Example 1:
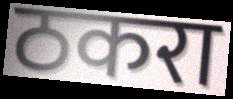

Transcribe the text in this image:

ठकरा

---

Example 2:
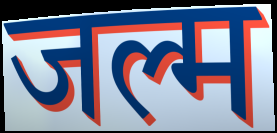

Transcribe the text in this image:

जल्म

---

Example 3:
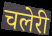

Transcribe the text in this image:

चलेरी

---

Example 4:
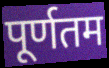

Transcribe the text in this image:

पूर्णतम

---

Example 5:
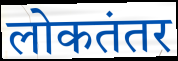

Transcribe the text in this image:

लोकतंतर